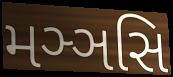
મઞ્ઞસિ